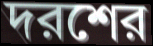
দরশের